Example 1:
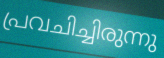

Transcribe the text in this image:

പ്രവചിച്ചിരുന്നു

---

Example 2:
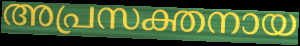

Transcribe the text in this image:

അപ്രസക്തനായ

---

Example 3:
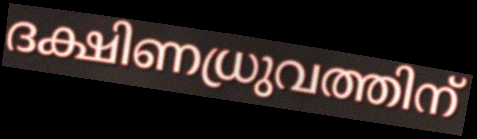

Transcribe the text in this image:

ദക്ഷിണധ്രുവത്തിന്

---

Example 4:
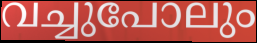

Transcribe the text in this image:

വച്ചുപോലും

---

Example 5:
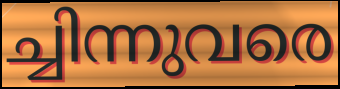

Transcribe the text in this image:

ച്ചിന്നുവരെ